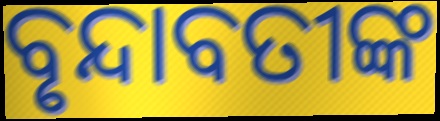
ବୃନ୍ଦାବତୀଙ୍କ